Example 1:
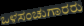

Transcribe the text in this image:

ಒಳಸಂಚುಗಾರರು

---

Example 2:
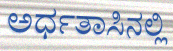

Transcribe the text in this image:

ಅರ್ಧತಾಸಿನಲ್ಲಿ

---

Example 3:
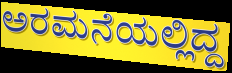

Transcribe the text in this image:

ಅರಮನೆಯಲ್ಲಿದ್ದ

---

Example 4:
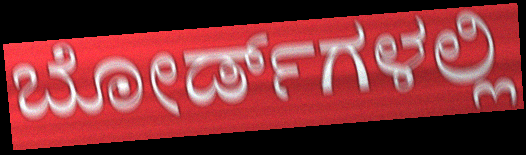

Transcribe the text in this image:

ಬೋರ್ಡ್‌ಗಳಲ್ಲಿ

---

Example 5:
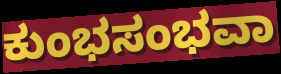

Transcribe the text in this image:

ಕುಂಭಸಂಭವಾ